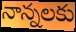
నాన్నలకు